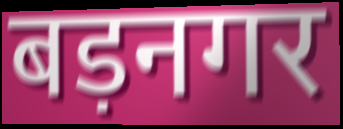
बड़नगर